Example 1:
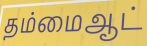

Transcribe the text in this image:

தம்மைஆட்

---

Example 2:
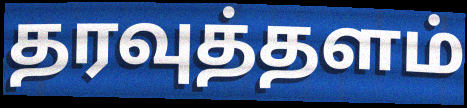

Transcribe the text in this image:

தரவுத்தளம்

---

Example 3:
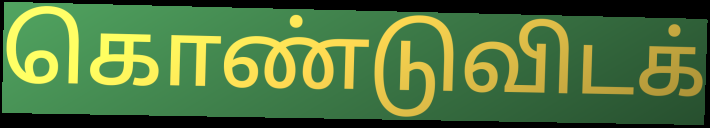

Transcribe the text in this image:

கொண்டுவிடக்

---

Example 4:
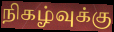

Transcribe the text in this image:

நிகழ்வுக்கு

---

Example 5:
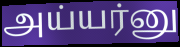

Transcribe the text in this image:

அய்யர்னு